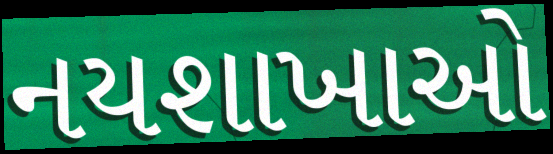
નયશાખાઓ